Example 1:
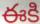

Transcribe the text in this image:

ఈకి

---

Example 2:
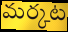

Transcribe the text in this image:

మర్కట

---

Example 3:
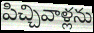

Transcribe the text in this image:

పిచ్చివాళ్లను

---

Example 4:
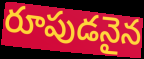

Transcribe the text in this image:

రూపుడనైన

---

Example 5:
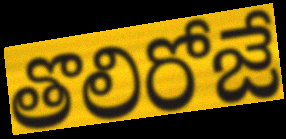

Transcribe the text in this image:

తొలిరోజే